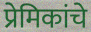
प्रेमिकांचे